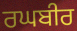
ਰਘਬੀਰ